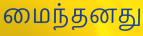
மைந்தனது